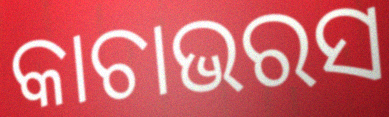
କାଚାଭରସ